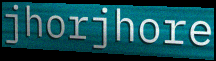
jhorjhore